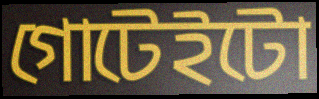
গোটেইটো